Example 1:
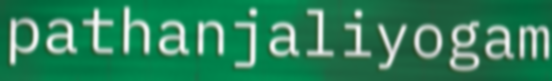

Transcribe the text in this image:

pathanjaliyogam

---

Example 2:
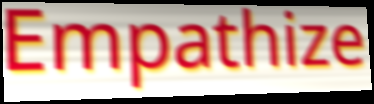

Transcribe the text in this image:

Empathize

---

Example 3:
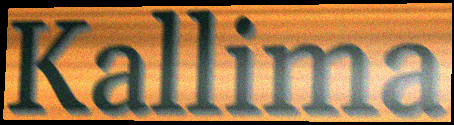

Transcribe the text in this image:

Kallima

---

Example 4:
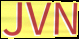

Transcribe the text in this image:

JVN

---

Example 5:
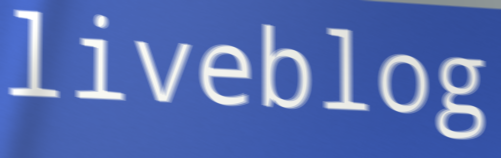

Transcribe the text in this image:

liveblog